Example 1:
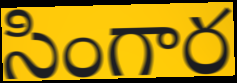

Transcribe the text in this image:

సింగార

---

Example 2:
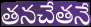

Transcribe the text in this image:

తనచేతనే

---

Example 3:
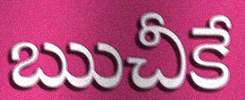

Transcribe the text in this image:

ఋచీకే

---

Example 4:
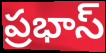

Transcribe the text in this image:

ప్రభాస్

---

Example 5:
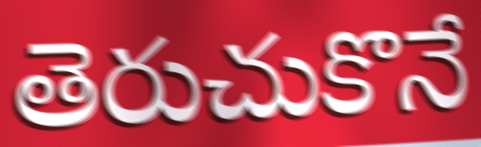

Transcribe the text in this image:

తెరుచుకొనే